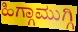
ಹಿಗ್ಗಾಮುಗ್ಗಿ